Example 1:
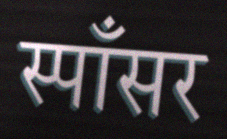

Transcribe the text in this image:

स्पॉंसर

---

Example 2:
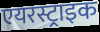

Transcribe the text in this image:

एयरस्ट्राइक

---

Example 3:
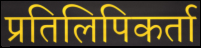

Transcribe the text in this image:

प्रतिलिपिकर्ता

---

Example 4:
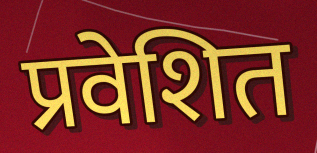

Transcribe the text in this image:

प्रवेशित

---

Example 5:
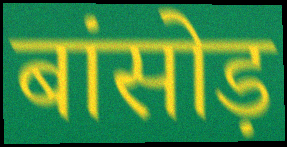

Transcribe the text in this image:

बांसोड़